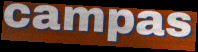
campas